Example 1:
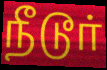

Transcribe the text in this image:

நீடூர்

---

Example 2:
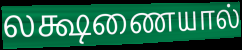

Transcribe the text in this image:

லக்ஷணையால்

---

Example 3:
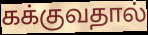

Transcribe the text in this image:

கக்குவதால்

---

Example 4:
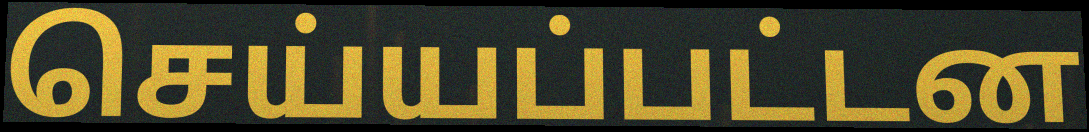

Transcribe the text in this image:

செய்யப்பட்டன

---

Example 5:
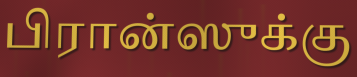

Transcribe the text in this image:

பிரான்ஸுக்கு